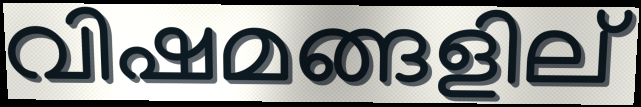
വിഷമങ്ങളില്